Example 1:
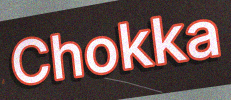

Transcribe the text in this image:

Chokka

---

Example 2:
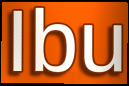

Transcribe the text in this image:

Ibu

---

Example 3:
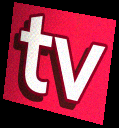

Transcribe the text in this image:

tv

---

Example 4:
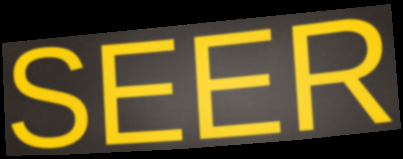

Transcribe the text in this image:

SEER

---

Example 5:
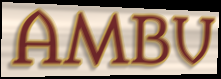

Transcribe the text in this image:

AMBU